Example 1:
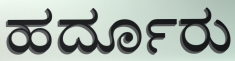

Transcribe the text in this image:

ಹರ್ದೂರು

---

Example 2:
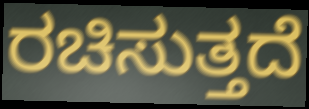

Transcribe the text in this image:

ರಚಿಸುತ್ತದೆ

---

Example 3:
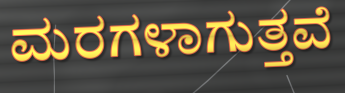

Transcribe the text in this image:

ಮರಗಳಾಗುತ್ತವೆ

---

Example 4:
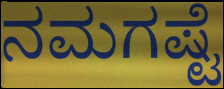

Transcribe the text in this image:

ನಮಗಷ್ಟೆ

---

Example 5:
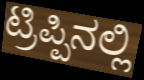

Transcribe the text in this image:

ಟ್ರಿಪ್ಪಿನಲ್ಲಿ